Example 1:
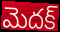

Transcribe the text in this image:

మెదక్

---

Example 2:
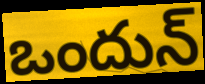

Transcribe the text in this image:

ఒందున్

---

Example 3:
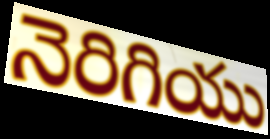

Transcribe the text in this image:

నెరిగియు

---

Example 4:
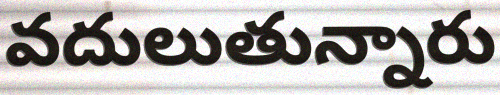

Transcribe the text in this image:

వదులుతున్నారు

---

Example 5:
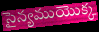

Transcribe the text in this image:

సైన్యముయొక్క